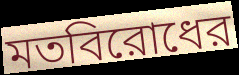
মতবিরোধের